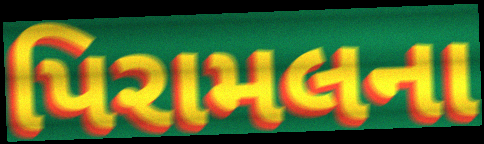
પિરામલના